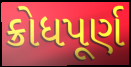
ક્રોધપૂર્ણ